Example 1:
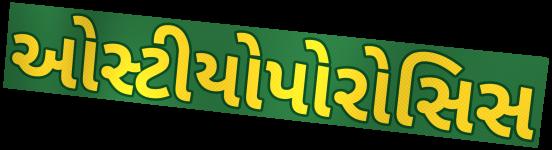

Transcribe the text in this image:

ઓસ્ટીયોપોરોસિસ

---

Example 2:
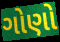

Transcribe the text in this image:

ગોણો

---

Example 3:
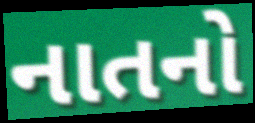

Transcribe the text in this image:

નાતનો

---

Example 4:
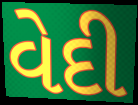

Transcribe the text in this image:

વેદી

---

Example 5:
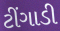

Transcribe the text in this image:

ટીંગાડી